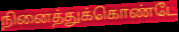
நினைத்துக்கொண்டே